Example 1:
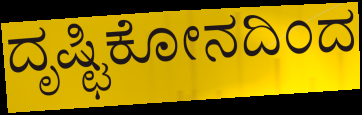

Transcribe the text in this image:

ದೃಷ್ಟಿಕೋನದಿಂದ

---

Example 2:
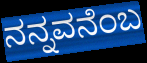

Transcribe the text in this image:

ನನ್ನವನೆಂಬ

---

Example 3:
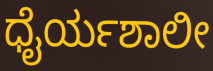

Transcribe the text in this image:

ಧೈರ್ಯಶಾಲೀ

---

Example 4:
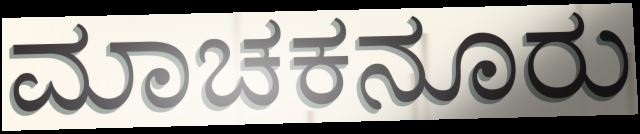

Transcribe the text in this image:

ಮಾಚಕನೂರು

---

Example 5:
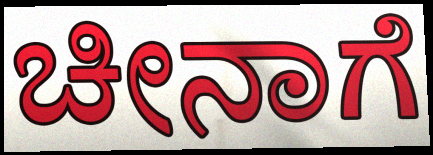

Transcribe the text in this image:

ಚೀನಾಗೆ